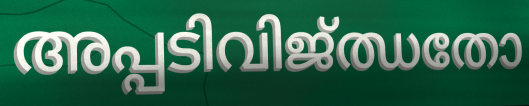
അപ്പടിവിജ്ഝതോ